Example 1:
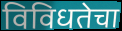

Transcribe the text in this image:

विविधतेचा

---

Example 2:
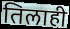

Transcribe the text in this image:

तिलाही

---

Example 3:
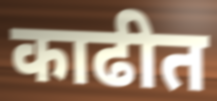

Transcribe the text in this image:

काढीत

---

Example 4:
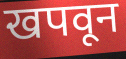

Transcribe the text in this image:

खपवून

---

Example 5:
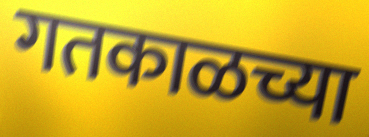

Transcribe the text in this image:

गतकाळच्या